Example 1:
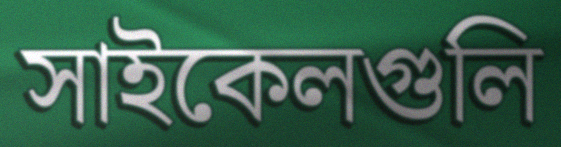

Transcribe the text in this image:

সাইকেলগুলি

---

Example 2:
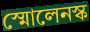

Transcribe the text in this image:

স্মোলেনস্ক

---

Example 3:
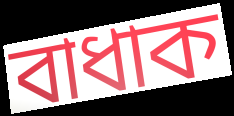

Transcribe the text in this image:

বাধাক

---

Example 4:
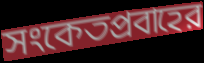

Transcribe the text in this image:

সংকেতপ্রবাহের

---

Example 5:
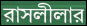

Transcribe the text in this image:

রাসলীলার